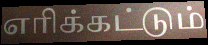
எரிக்கட்டும்